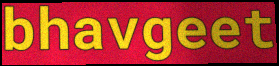
bhavgeet